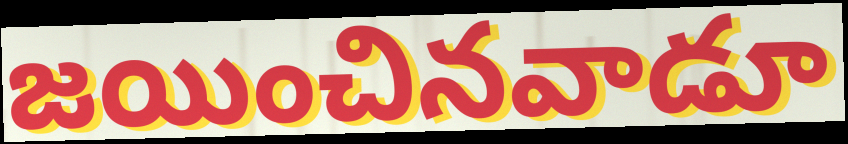
జయించినవాడూ